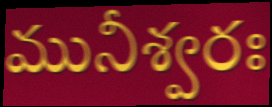
మునీశ్వరః